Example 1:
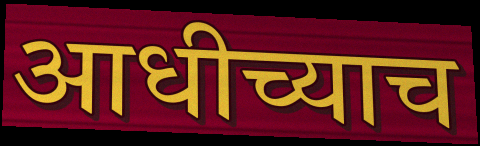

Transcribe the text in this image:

आधीच्याच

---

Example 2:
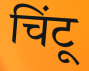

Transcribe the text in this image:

चिंटू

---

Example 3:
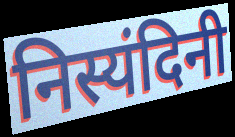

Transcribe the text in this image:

निस्यंदिनी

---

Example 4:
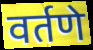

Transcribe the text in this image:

वर्तणे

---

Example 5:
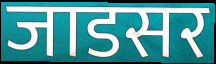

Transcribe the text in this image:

जाडसर